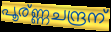
പൂര്ണ്ണചന്ദ്രന്